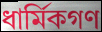
ধার্মিকগণ